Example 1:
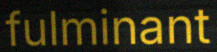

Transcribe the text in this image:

fulminant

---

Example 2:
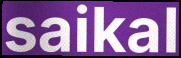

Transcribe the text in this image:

saikal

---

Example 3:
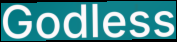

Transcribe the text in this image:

Godless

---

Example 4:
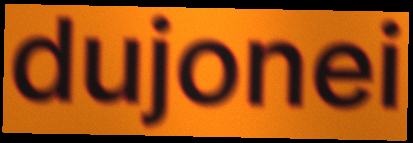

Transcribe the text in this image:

dujonei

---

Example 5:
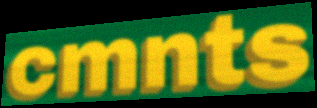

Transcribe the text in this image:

cmnts